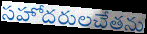
సహోదరులచేతను